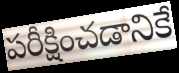
పరీక్షించడానికే